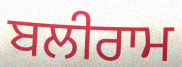
ਬਲੀਰਾਮ